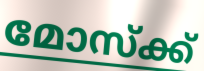
മോസ്ക്ക്